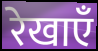
रेखाएँ